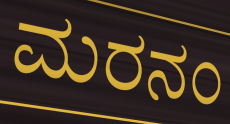
ಮರನಂ